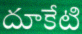
దూకేటి